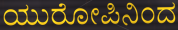
ಯುರೋಪಿನಿಂದ